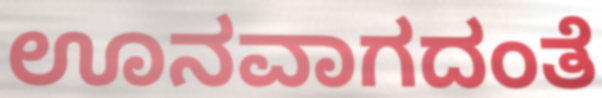
ಊನವಾಗದಂತೆ